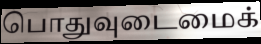
பொதுவுடைமைக்